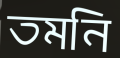
তমনি